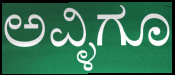
ಅವ್ಳಿಗೂ